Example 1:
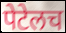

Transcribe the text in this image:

पेटेलच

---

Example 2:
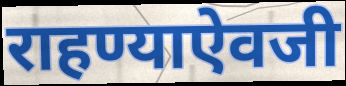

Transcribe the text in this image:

राहण्याऐवजी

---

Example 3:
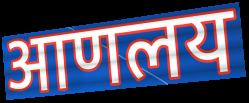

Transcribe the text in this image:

आणलय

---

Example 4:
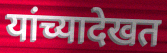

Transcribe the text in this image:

यांच्यादेखत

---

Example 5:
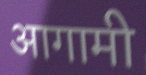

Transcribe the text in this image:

आगामी